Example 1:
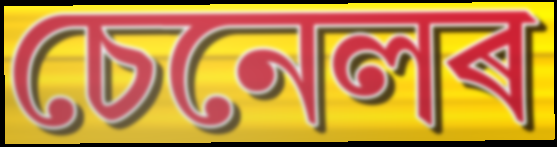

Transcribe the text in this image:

চেনেলৰ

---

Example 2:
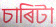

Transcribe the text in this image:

চাৰিটা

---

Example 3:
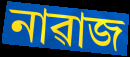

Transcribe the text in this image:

নাৱাজ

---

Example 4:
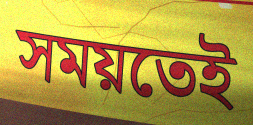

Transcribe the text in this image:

সময়তেই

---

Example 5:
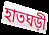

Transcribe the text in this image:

হাতঘড়ী